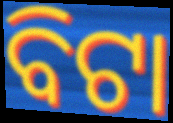
ବିଟା